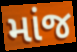
માંજ